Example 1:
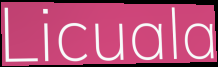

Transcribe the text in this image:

Licuala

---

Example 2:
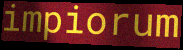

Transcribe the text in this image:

impiorum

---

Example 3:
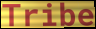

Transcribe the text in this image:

Tribe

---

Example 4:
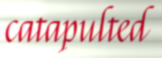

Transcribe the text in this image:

catapulted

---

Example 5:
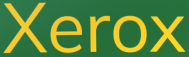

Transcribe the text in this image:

Xerox